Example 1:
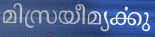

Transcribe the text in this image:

മിസ്രയീമ്യൎക്കു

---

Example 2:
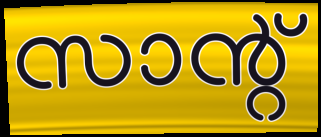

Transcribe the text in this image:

സാന്റ്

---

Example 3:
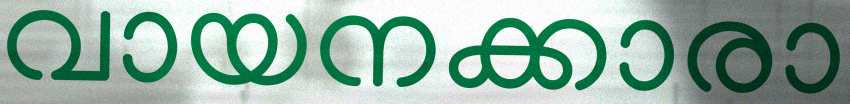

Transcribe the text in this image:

വായനക്കാരാ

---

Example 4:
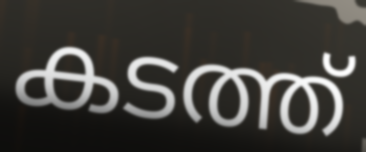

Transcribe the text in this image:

കടത്ത്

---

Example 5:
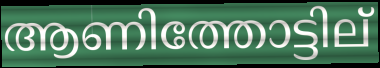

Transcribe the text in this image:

ആണിത്തോട്ടില്